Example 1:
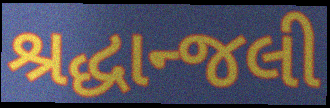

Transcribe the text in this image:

શ્રદ્ધાન્જલી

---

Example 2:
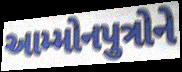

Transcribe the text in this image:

આમ્મોનપુત્રોને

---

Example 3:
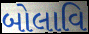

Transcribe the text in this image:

બોલાવિ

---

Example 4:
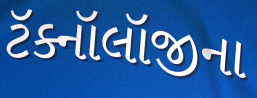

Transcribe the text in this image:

ટૅક્નૉલૉજીના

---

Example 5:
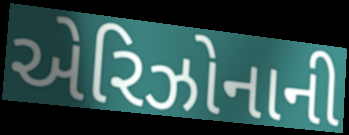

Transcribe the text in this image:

એરિઝોનાની